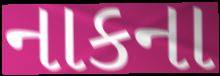
નાકના